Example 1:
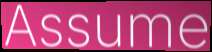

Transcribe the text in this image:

Assume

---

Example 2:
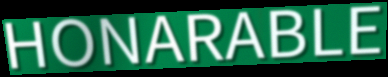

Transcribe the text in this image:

HONARABLE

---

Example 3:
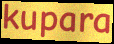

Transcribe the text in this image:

kupara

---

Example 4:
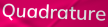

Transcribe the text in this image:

Quadrature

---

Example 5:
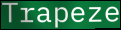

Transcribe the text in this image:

Trapeze